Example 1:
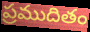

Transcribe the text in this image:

ప్రముదితం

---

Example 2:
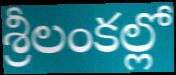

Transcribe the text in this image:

శ్రీలంకల్లో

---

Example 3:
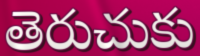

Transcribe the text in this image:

తెరుచుకు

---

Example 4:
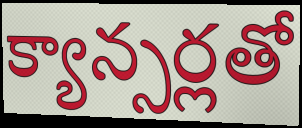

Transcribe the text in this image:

క్యాన్సర్లతో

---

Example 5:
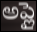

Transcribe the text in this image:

అప్లై